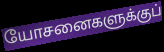
யோசனைகளுக்குப்